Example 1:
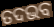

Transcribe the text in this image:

ତଦଭବ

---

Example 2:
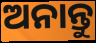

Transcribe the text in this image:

ଅନାନ୍ତୁ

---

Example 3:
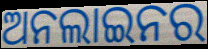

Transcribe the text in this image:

ଅନଲାଇନର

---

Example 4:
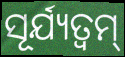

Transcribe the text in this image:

ସୂର୍ଯ୍ୟତ୍ୱମ୍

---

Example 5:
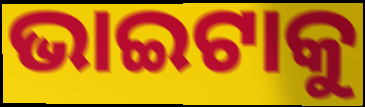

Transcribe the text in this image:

ଭାଇଟାକୁ